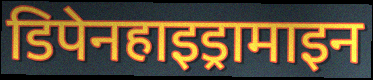
डिपेनहाइड्रामाइन